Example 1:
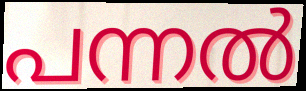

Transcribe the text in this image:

പന്നൽ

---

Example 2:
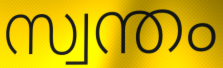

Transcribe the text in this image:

സ്വന്തം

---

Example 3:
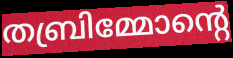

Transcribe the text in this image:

തബ്രിമ്മോന്റെ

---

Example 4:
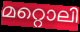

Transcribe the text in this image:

മറ്റൊലി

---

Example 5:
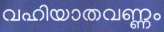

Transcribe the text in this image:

വഹിയാതവണ്ണം